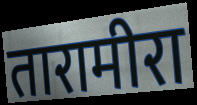
तारामीरा